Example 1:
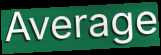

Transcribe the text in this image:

Average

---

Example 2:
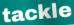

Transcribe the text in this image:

tackle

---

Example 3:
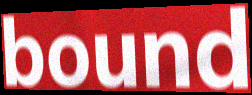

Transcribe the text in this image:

bound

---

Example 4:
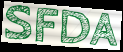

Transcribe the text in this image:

SFDA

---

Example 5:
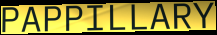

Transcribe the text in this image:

PAPPILLARY